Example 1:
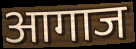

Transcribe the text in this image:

आगाज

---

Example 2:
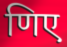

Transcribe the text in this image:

णिए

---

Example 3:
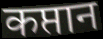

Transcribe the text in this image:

कप्तान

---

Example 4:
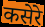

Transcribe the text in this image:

कसेरे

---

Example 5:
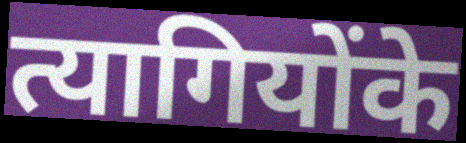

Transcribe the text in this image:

त्यागियोंके